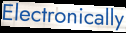
Electronically